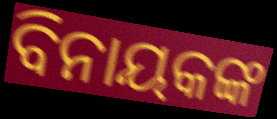
ବିନାୟକଙ୍କ